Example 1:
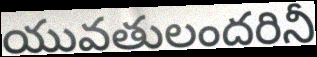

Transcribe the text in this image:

యువతులందరినీ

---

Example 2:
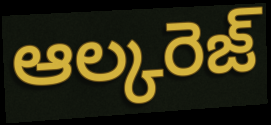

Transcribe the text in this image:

ఆల్కరెజ్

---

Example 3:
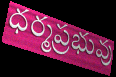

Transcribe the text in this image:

ధర్మప్రభువు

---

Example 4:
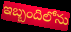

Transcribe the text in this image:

ఇబ్బందిలోను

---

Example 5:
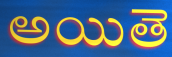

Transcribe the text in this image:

అయితె